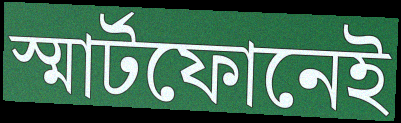
স্মার্টফোনেই